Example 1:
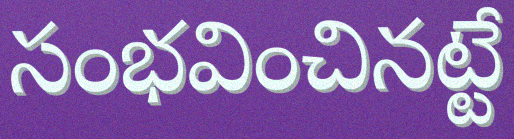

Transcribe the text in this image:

సంభవించినట్టే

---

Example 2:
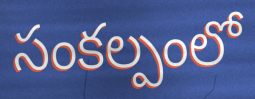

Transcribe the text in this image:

సంకల్పంలో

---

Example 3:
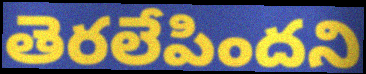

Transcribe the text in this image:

తెరలేపిందని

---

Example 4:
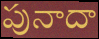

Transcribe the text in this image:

పునాదా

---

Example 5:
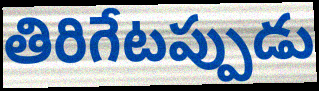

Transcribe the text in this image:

తిరిగేటప్పుడు